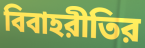
বিবাহরীতির